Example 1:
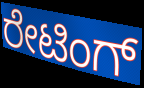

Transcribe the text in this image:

ರೇಟಿಂಗ್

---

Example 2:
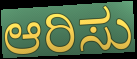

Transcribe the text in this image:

ಆರಿಸು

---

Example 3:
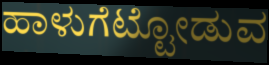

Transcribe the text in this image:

ಹಾಳುಗೆಟ್ಟೋಡುವ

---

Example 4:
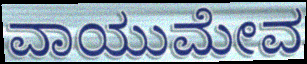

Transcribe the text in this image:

ವಾಯುಮೇವ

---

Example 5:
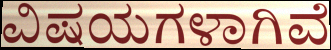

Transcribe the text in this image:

ವಿಷಯಗಳಾಗಿವೆ